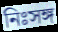
নিঃসঙ্গ